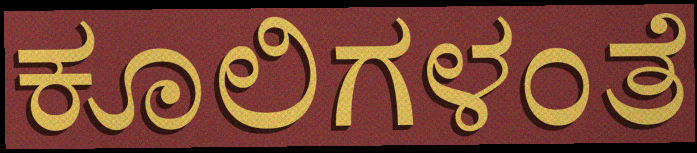
ಕೂಲಿಗಳಂತೆ